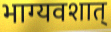
भाग्यवशात्